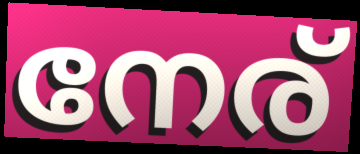
നേര്